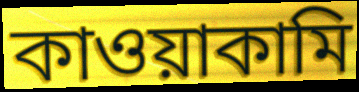
কাওয়াকামি